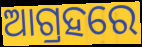
ଆଗ୍ରହରେ